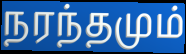
நரந்தமும்